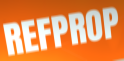
REFPROP